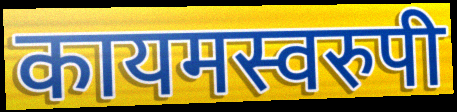
कायमस्वरुपी